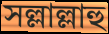
সল্লাল্লাহু